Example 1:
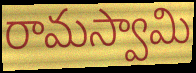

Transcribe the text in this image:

రామస్వామి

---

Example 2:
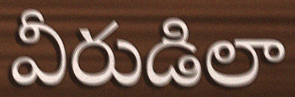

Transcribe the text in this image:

వీరుడిలా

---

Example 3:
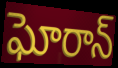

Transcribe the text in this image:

ఘోరాన్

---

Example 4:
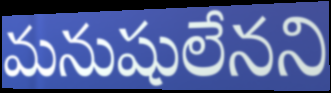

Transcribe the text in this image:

మనుషులేనని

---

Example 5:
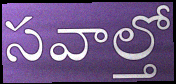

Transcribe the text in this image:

సవాల్తో